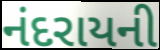
નંદરાયની